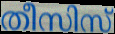
തീസിസ്